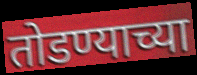
तोडण्याच्या